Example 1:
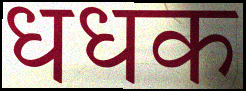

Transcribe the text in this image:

धधक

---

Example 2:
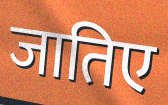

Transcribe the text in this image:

जातिए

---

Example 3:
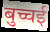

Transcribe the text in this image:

बुच्चई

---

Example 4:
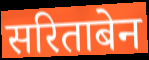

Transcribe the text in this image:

सरिताबेन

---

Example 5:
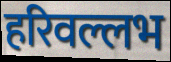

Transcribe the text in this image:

हरिवल्लभ